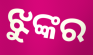
ଝୁଙ୍କର